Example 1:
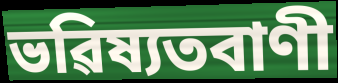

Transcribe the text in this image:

ভৱিষ্যতবাণী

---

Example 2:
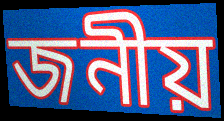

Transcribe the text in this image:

জনীয়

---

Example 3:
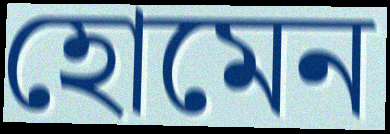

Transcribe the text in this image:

হোমেন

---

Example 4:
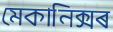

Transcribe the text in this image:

মেকানিক্সৰ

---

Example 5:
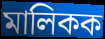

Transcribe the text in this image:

মালিকক